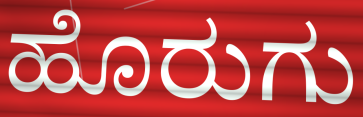
ಹೊರುಗು